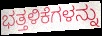
ಭತ್ತಳಿಕೆಗಳನ್ನು